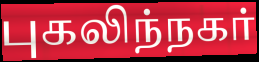
புகலிந்நகர்